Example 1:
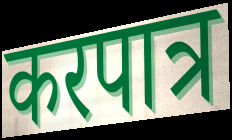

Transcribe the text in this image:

करपात्र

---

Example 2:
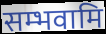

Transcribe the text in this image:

सम्भवामि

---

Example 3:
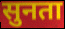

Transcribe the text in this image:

सुनता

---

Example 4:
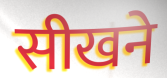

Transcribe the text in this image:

सीखने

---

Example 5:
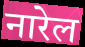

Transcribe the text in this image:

नारेल